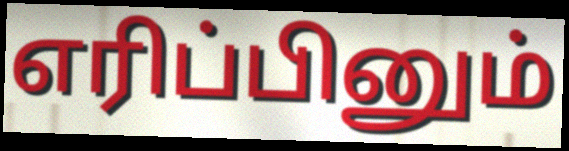
எரிப்பினும்